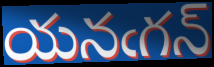
యనఁగన్